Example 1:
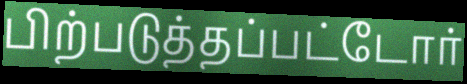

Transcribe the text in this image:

பிற்படுத்தப்பட்டோர்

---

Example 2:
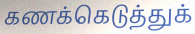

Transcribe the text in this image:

கணக்கெடுத்துக்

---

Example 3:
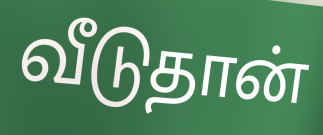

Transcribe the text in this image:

வீடுதான்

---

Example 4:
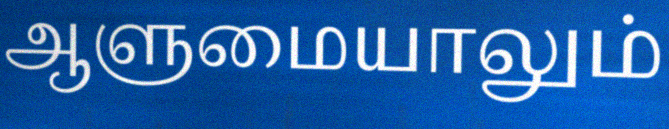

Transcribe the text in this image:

ஆளுமையாலும்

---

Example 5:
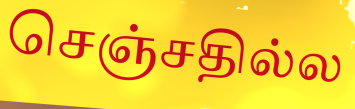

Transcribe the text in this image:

செஞ்சதில்ல